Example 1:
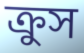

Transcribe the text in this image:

ক্রুস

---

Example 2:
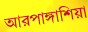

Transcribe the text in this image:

আরপাঙ্গাশিয়া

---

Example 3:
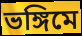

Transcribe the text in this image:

ভঙ্গিমে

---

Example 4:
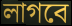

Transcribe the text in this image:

লাগবে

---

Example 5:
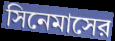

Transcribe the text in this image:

সিনেমাসের